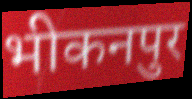
भीकनपुर